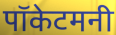
पॉकेटमनी